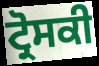
ਟ੍ਰੋਸਕੀ